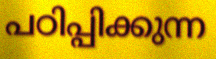
പഠിപ്പിക്കുന്ന